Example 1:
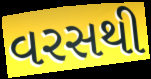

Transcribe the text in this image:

વરસથી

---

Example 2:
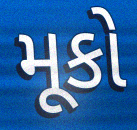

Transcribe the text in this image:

મૂકો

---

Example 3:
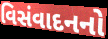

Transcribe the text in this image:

વિસંવાદનનો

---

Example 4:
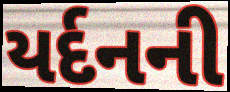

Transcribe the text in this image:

યર્દનની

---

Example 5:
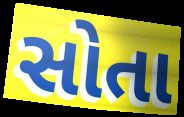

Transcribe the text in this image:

સોતા